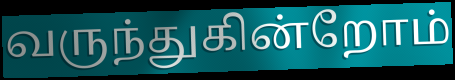
வருந்துகின்றோம்